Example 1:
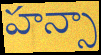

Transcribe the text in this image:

హన్సా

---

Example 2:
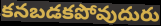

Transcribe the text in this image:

కనబడకపోవుదురు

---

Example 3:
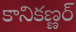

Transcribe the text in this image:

కానికణ్ణర్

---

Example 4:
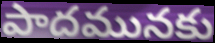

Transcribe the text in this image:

పాదమునకు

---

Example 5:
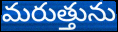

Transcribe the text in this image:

మరుత్తును